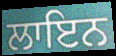
ਲਾਇਨ